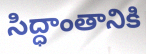
సిద్ధాంతానికి